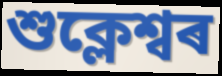
শুক্লেশ্বৰ